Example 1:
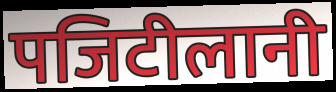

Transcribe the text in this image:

पजिटीलानी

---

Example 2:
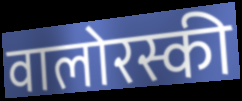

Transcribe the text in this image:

वालोरस्की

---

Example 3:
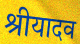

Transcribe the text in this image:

श्रीयादव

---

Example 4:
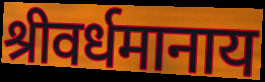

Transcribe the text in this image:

श्रीवर्धमानाय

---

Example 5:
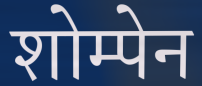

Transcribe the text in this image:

शोम्पेन